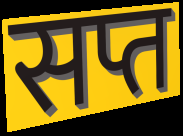
सप्त